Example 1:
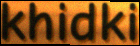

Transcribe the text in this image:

khidki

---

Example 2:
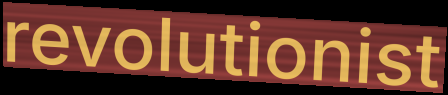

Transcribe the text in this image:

revolutionist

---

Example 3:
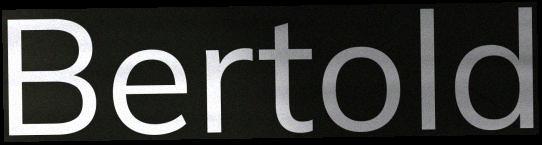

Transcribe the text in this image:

Bertold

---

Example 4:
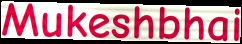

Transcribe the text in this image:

Mukeshbhai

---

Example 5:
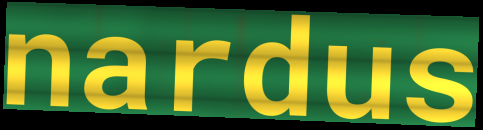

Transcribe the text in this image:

nardus